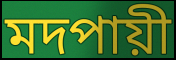
মদপায়ী